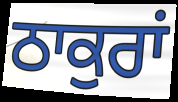
ਠਾਕੁਰਾਂ